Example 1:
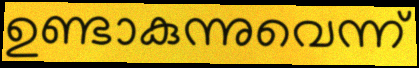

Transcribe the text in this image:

ഉണ്ടാകുന്നുവെന്ന്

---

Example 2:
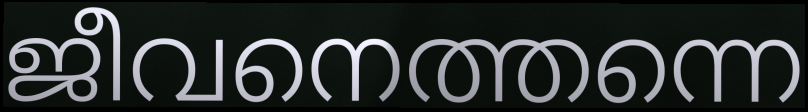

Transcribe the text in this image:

ജീവനെത്തന്നെ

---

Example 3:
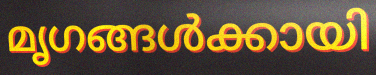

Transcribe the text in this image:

മൃഗങ്ങൾക്കായി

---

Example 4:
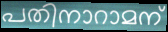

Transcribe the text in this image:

പതിനാറാമന്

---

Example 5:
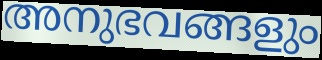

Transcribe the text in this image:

അനുഭവങ്ങളും